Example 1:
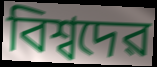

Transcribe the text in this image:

বিশ্বদেৱ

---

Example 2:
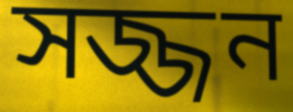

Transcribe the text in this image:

সজ্জন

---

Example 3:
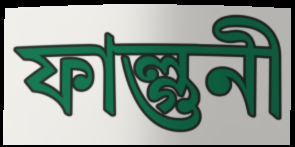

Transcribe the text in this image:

ফাল্গুনী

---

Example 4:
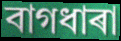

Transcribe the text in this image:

বাগধাৰা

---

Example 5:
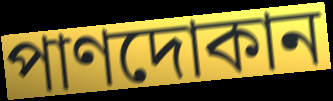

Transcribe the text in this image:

পাণদোকান